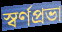
স্বর্ণপ্রভা